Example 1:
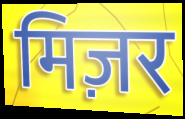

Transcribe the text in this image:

मिज़र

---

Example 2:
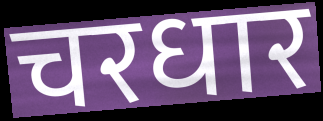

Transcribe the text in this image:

चरधार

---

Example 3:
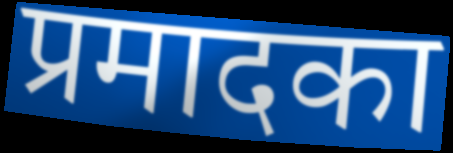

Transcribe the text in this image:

प्रमादका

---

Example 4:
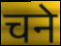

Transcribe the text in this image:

चने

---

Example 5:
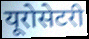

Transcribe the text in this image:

यूरोसेटरी